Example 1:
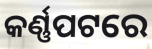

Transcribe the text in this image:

କର୍ଣ୍ଣପଟରେ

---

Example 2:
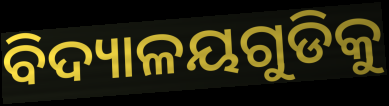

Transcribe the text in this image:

ବିଦ୍ୟାଳୟଗୁଡିକୁ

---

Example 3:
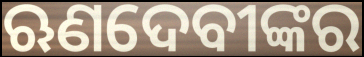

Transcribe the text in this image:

ଋଣଦେବୀଙ୍କର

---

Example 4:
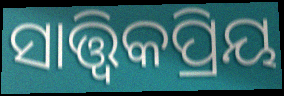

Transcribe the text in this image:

ସାତ୍ତ୍ଵିକପ୍ରିୟ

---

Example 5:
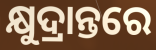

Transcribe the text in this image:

କ୍ଷୁଦ୍ରାନ୍ତରେ